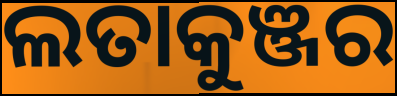
ଲତାକୁଞ୍ଜର